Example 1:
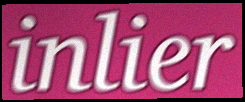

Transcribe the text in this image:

inlier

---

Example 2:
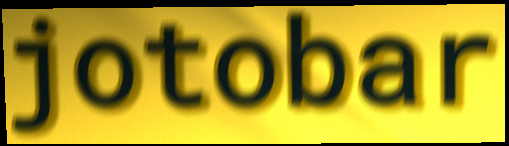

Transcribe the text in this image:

jotobar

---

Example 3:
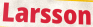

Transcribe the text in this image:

Larsson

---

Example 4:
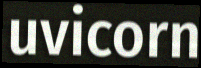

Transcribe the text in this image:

uvicorn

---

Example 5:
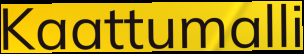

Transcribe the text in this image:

Kaattumalli